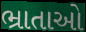
ભ્રાતાઓ